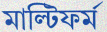
মাল্টিফর্ম